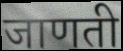
जाणती